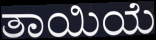
ತಾಯಿಯೆ